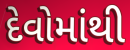
દેવોમાંથી